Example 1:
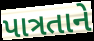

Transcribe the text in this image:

પાત્રતાને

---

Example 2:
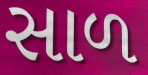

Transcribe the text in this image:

સાળ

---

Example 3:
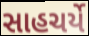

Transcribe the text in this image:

સાહચર્યે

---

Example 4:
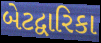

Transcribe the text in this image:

બેટદ્વારિકા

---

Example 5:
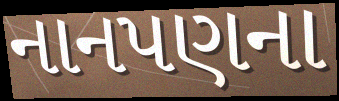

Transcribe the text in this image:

નાનપણના